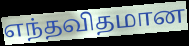
எந்தவிதமான